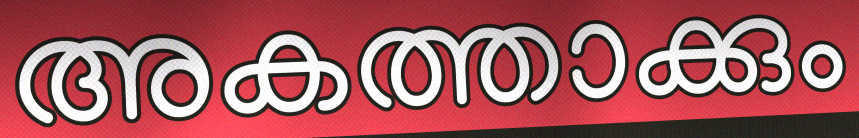
അകത്താക്കും